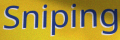
Sniping